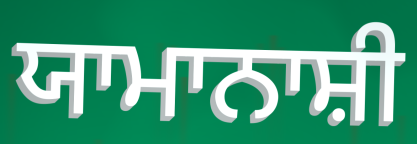
ਯਾਮਾਨਾਸ਼ੀ